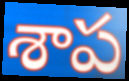
శాప